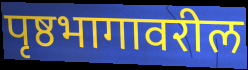
पृष्ठभागावरील